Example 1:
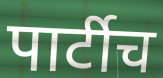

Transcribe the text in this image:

पार्टीच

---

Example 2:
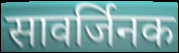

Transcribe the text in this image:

सावर्जिनक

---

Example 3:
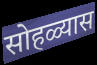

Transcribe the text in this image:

सोहळ्यास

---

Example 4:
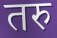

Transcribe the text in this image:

तरु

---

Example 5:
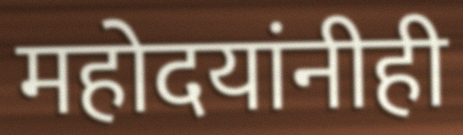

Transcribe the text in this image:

महोदयांनीही